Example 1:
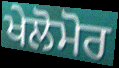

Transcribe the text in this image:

ਖੇਲੋਮੋਰ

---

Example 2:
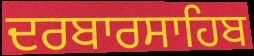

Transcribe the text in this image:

ਦਰਬਾਰਸਾਹਿਬ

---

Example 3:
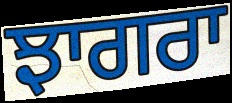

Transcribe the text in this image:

ਝਾਗਰਾ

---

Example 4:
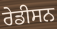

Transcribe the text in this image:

ਰੇਡੀਸਨ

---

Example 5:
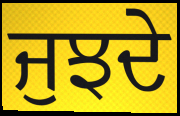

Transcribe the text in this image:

ਜੁਝਦੇ